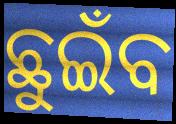
ଛୁଇଁବ